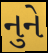
નુને